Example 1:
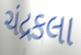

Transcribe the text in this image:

ચંદ્રકલા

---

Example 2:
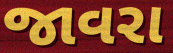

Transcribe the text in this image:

જાવરા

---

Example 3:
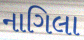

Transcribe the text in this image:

નાગિલા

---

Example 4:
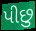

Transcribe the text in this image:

પીછુ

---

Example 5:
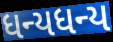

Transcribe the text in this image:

ધન્યધન્ય